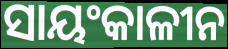
ସାୟଂକାଳୀନ